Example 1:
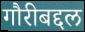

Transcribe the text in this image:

गौरीबद्दल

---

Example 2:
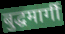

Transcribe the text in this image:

बुद्धमार्गी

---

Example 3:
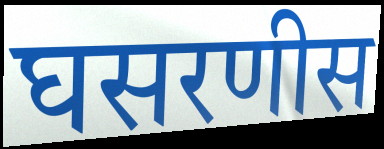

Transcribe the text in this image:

घसरणीस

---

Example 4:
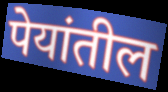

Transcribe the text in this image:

पेयांतील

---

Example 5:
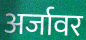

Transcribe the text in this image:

अर्जावर